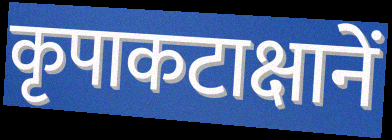
कृपाकटाक्षानें